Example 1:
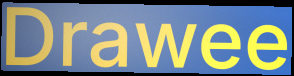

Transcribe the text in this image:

Drawee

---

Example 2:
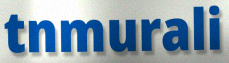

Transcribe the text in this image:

tnmurali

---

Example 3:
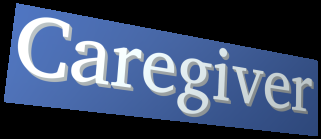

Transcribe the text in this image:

Caregiver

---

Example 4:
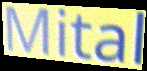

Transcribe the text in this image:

Mital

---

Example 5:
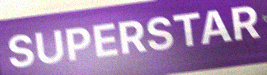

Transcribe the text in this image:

SUPERSTAR